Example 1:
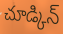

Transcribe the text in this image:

చూడ్కిన్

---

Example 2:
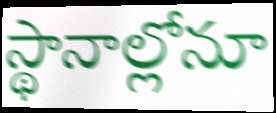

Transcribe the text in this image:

స్థానాల్లోనూ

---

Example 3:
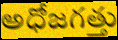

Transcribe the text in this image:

అధోజగత్తు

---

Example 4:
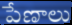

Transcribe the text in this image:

పేణాలు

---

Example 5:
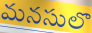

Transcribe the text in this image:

మనసులొ